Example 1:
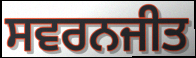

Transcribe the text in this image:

ਸਵਰਨਜੀਤ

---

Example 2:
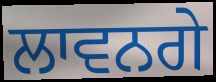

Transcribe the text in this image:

ਲਾਵਨਗੇ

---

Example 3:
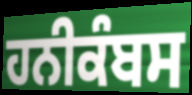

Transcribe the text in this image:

ਹਨੀਕੰਬਸ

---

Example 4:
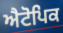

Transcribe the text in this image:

ਐਟੋਪਿਕ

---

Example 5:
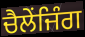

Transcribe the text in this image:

ਚੈਲੇਂਜਿੰਗ